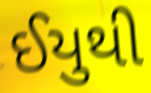
ઈયુથી